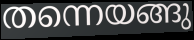
തന്നെയങ്ങു